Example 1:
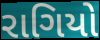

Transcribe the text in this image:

રાગિયો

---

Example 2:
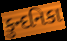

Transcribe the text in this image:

કુન્દનિકા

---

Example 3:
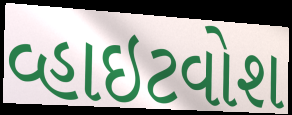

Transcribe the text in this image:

વ્હાઇટવોશ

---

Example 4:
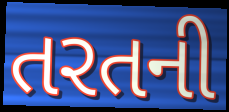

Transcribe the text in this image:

તરતની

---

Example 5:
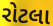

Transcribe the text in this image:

રોટલા